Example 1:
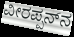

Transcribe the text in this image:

ವೀರಪ್ಪನ್‍ನ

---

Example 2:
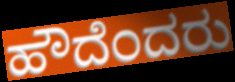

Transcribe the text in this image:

ಹೌದೆಂದರು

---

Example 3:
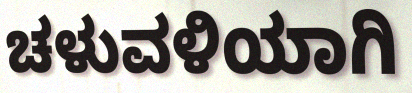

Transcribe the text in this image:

ಚಳುವಳಿಯಾಗಿ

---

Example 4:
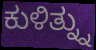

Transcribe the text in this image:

ಕುಳಿತ್ನ್ನು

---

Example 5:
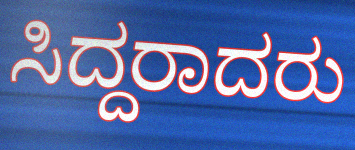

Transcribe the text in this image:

ಸಿದ್ದರಾದರು